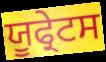
ਯੂਫ੍ਰੇਟਸ